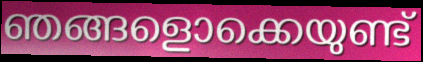
ഞങ്ങളൊക്കെയുണ്ട്